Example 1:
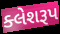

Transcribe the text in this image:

ક્લેશરૂપ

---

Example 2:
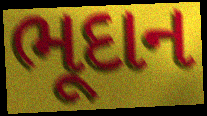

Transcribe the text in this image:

ભૂદાન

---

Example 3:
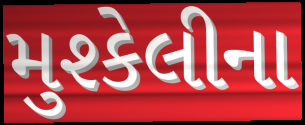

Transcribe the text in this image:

મુશ્કેલીના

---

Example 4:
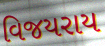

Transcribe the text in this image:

વિજયરાય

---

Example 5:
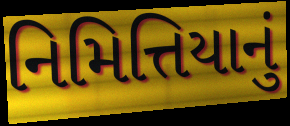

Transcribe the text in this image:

નિમિત્તિયાનું